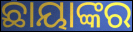
ଛାୟାଙ୍କର